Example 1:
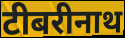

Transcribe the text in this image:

टीबरीनाथ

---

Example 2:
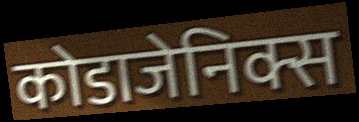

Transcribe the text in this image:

कोडाजेनिक्स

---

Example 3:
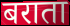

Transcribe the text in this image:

बराता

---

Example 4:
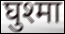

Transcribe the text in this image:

घुश्मा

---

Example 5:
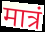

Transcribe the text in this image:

मात्रं